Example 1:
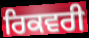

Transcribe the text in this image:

ਰਿਕਵਰੀ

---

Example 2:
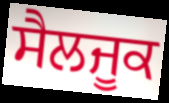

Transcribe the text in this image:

ਸੈਲਜੂਕ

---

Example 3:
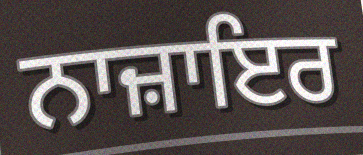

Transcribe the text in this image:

ਨਾਜ਼ਾਇਰ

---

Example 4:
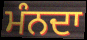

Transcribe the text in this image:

ਮੰਨਦਾ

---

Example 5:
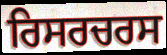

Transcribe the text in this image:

ਰਿਸਰਚਰਸ